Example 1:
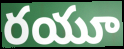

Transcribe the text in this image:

రయూ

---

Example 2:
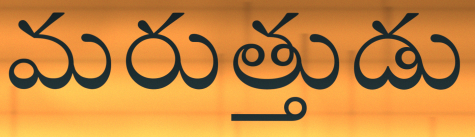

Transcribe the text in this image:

మరుత్తుడు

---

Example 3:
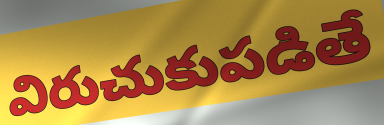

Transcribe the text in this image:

విరుచుకుపడితే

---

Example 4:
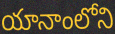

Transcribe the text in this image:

యానాంలోని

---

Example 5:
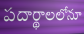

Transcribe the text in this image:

పదార్థాలలోనూ